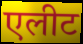
एलीट